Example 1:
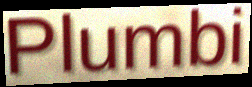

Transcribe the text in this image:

Plumbi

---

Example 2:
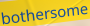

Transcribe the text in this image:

bothersome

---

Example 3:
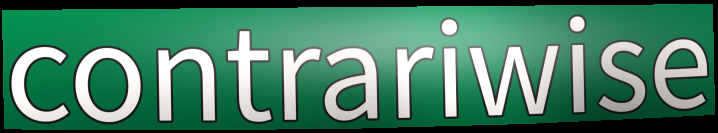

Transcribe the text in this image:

contrariwise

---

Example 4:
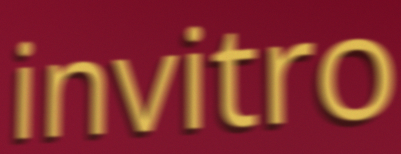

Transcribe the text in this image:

invitro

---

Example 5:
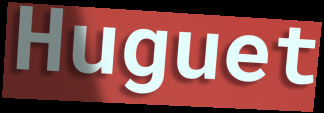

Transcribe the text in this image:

Huguet